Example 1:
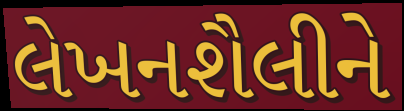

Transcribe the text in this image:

લેખનશૈલીને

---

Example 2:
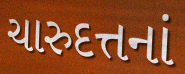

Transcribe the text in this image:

ચારુદત્તનાં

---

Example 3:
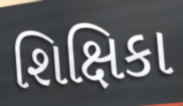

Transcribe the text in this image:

શિક્ષિકા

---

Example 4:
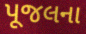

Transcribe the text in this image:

પૂજલના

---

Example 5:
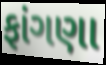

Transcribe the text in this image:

ફાંગણા